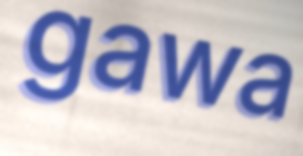
gawa